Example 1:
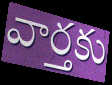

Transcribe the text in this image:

వార్తకు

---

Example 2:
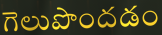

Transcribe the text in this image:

గెలుపొందడం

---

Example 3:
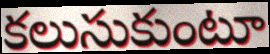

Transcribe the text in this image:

కలుసుకుంటూ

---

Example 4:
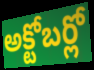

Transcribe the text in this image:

అక్టోబర్లో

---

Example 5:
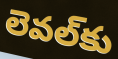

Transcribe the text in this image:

లెవల్‌కు